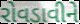
રોવડાવીને